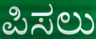
ಪಿಸಲು